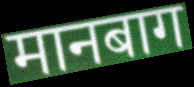
मानबाग